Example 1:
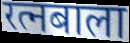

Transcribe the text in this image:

रत्नबाला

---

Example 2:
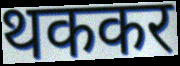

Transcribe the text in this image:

थककर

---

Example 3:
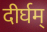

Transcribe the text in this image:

दीर्घम्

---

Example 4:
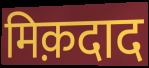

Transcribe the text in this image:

मिक़दाद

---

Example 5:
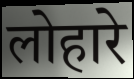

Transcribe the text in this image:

लोहारे